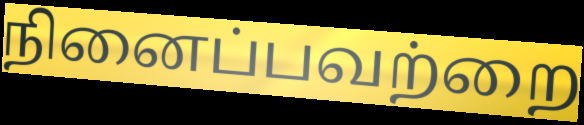
நினைப்பவற்றை